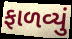
ફાળવ્યું